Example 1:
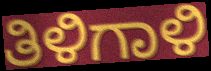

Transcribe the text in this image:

ತಿಳಿಗಾಳಿ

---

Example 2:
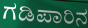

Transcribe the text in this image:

ಗಡಿಪಾರಿನ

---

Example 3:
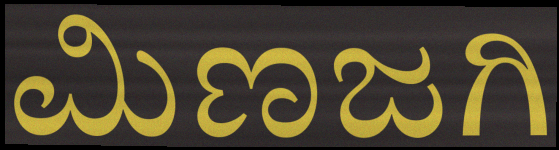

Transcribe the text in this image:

ಮಿಣಜಗಿ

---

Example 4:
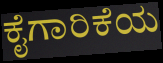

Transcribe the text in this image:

ಕೈಗಾರಿಕೆಯ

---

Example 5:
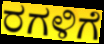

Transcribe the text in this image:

ರಗಳಿಗೆ